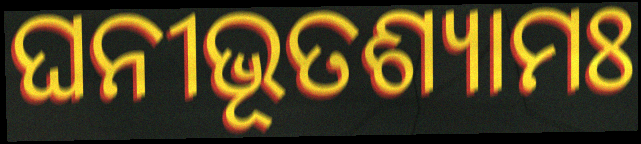
ଘନୀଭୂତଶ୍ୟାମଃ